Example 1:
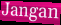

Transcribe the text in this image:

Jangan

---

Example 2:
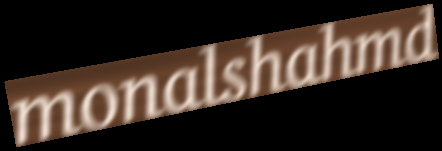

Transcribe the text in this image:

monalshahmd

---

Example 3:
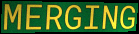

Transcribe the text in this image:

MERGING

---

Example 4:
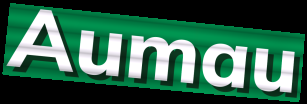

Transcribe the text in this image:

Aumau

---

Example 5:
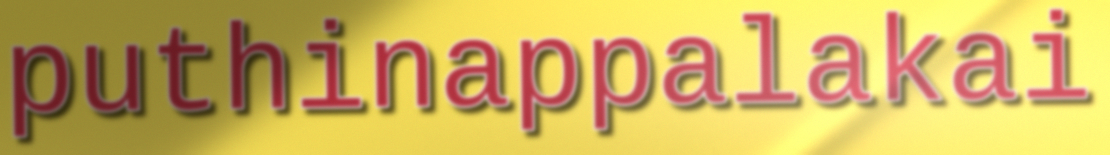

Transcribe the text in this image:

puthinappalakai